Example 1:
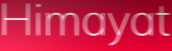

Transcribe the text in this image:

Himayat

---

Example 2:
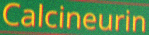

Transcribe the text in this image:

Calcineurin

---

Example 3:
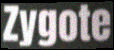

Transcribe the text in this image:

Zygote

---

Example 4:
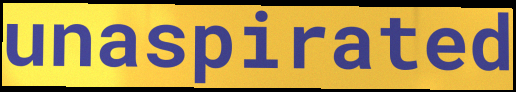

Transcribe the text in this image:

unaspirated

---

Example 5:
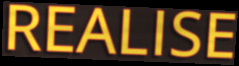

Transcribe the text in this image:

REALISE